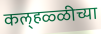
कल्हळ्ळीच्या